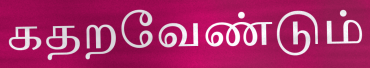
கதறவேண்டும்